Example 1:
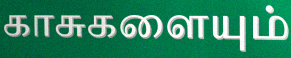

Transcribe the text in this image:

காசுகளையும்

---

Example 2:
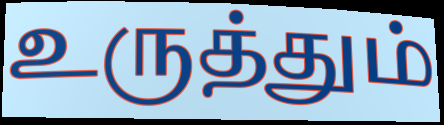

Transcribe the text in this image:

உருத்தும்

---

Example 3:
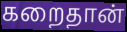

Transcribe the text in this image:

கறைதான்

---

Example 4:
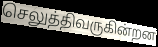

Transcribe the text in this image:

செலுத்திவருகின்றன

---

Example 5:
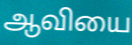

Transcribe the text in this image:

ஆவியை